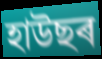
হাউছৰ